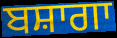
ਬਸ਼ਾਗਾ